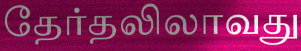
தேர்தலிலாவது